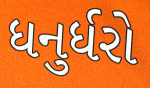
ધનુર્ધરો